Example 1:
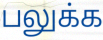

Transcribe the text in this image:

பலுக்க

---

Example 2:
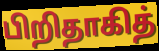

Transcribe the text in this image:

பிறிதாகித்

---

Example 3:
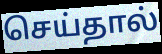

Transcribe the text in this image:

செய்தால்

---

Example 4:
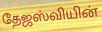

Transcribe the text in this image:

தேஜஸ்வியின்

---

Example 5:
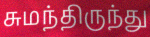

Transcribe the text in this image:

சுமந்திருந்து